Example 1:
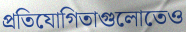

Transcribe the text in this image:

প্রতিযোগিতাগুলোতেও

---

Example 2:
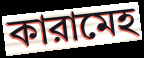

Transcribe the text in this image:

কারামেহ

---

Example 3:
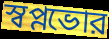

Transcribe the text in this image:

স্বপ্নভোর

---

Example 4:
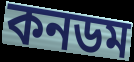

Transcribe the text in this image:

কনডম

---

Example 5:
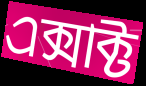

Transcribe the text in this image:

এক্সাক্ট